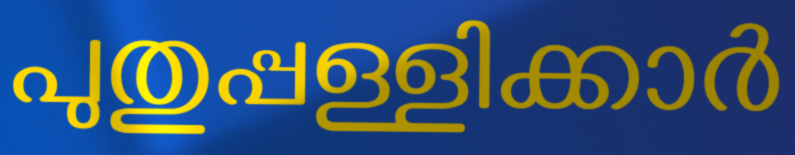
പുതുപ്പള്ളിക്കാർ